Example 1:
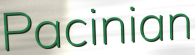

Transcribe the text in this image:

Pacinian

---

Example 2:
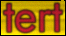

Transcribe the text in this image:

tert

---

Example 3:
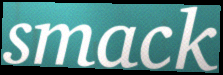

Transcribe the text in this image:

smack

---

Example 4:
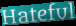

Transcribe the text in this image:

Hateful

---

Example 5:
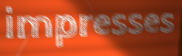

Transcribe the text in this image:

impresses